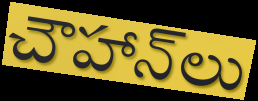
చౌహాన్‌లు